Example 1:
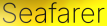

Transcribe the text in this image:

Seafarer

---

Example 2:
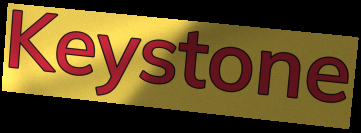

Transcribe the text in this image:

Keystone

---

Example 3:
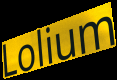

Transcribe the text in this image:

Lolium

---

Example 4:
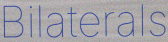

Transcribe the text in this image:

Bilaterals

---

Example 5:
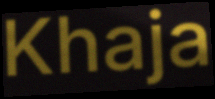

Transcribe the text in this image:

Khaja